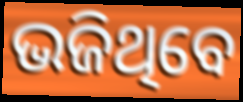
ଭଜିଥିବେ